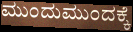
ಮುಂದುಮುಂದಕ್ಕೆ